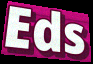
Eds